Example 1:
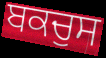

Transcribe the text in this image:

ਬਕਚੁਸ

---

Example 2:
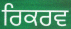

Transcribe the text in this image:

ਰਿਕਰਵ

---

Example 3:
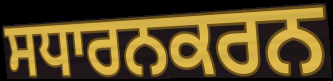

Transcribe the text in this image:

ਸਧਾਰਨਕਰਨ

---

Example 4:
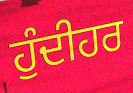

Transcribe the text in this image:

ਹੁੰਦੀਹਰ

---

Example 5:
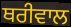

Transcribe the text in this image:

ਥਰੀਵਾਲ